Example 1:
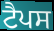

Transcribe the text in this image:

ਟੈਪਸ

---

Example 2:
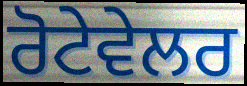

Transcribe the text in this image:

ਰੋਟੇਵੇਲਰ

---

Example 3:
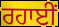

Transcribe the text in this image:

ਰਹਾਈਂ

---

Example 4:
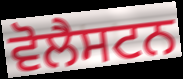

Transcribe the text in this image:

ਵੋਲੈਸਟਨ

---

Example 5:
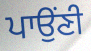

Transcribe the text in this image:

ਪਾਉਂਣੀ